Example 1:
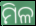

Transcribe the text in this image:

ମିଳ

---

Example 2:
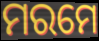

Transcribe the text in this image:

ମରମେ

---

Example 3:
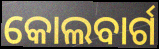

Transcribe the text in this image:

କୋଲବାର୍ଗ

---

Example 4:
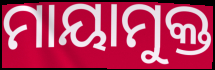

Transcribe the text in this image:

ମାୟାମୁକ୍ତ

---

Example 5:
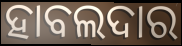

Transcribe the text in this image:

ହାବଲଦାର